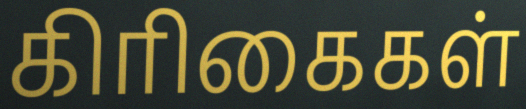
கிரிகைகள்